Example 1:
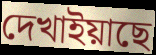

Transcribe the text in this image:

দেখাইয়াছে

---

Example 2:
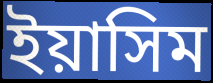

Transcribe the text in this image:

ইয়াসিম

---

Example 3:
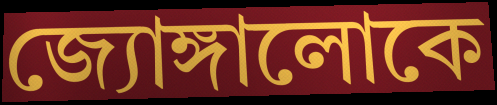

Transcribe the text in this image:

জ্যোঙ্গালোকে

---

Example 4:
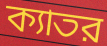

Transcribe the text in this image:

ক্যাতর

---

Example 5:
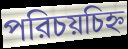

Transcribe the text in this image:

পরিচয়চিহ্ন